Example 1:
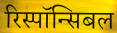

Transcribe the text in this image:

रिस्पॉन्सिबल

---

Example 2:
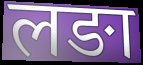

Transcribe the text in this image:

लङा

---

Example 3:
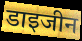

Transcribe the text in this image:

डाइजीन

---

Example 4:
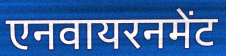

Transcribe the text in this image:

एनवायरनमेंट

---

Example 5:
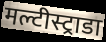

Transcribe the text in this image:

मल्टीस्ट्राडा